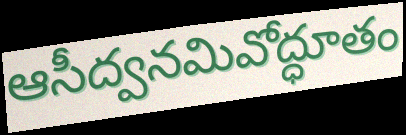
ఆసీద్వనమివోద్ధూతం